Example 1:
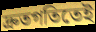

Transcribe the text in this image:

দ্রুতগতিতেই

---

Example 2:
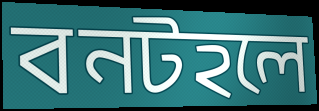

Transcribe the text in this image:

বনটহলে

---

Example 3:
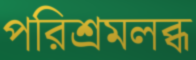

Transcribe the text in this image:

পরিশ্রমলব্ধ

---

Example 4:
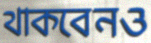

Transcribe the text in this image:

থাকবেনও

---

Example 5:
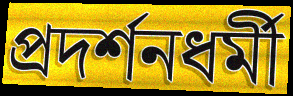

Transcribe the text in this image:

প্রদর্শনধর্মী